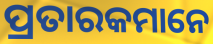
ପ୍ରତାରକମାନେ